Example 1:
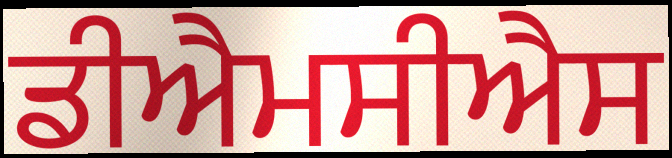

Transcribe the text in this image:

ਡੀਐਮਸੀਐਸ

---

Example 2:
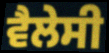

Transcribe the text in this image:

ਵੈਲੇਸੀ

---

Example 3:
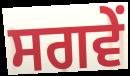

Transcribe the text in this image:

ਸਗਵੇਂ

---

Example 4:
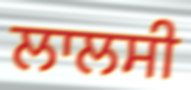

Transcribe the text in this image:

ਲਾਲਸੀ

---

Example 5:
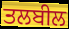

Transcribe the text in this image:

ਤਲਬੀਲ